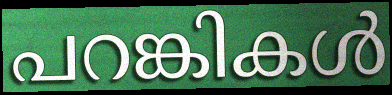
പറങ്കികൾ